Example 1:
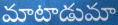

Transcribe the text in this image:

మాటాడుమా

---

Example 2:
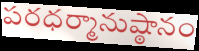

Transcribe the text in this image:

పరధర్మానుష్ఠానం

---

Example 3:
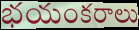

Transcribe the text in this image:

భయంకరాలు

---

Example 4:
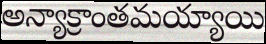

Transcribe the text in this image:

అన్యాక్రాంతమయ్యాయి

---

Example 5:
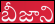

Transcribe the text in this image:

బీజాని